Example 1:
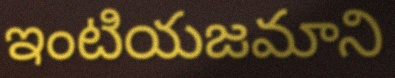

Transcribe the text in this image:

ఇంటియజమాని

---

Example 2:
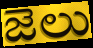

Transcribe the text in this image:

జెలు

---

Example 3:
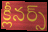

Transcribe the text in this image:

క్లీనర్స్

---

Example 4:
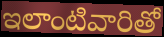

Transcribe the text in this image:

ఇలాంటివారితో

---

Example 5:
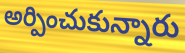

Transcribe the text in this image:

అర్పించుకున్నారు